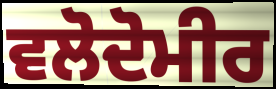
ਵਲੋਦੋਮੀਰ